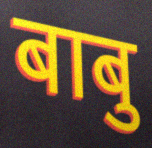
बाबु